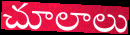
చూలాలు